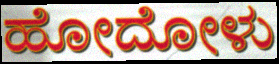
ಹೋದೋಳು